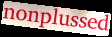
nonplussed